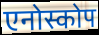
एनोस्कोप